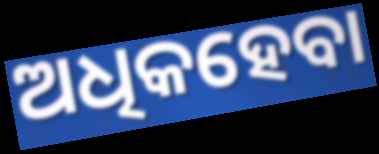
ଅଧିକହେବା